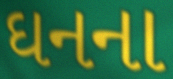
ઘનના